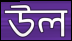
উল